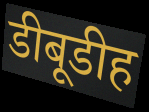
डीबूडीह